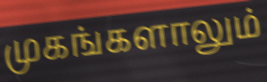
முகங்களாலும்